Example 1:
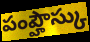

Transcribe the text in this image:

పంప్హౌస్కు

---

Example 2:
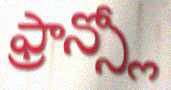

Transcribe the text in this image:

ఫ్రాన్స్లో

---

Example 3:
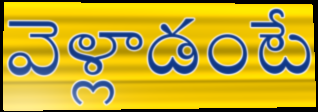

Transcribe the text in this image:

వెళ్లాడంటే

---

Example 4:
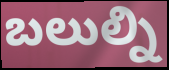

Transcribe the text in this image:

బలుల్ని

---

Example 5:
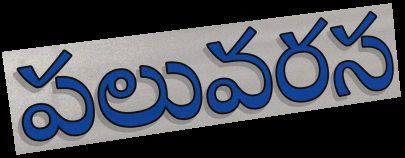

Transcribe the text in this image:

పలువరస